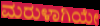
ಮರುಳಾಗಿಯೇ